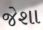
જેશા